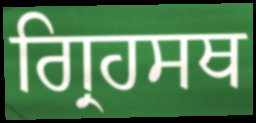
ਗ੍ਰਿਹਸਥ